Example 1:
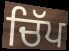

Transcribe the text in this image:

ਚਿੱਪ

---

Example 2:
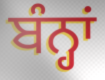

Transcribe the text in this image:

ਬੰਨ੍ਹਾਂ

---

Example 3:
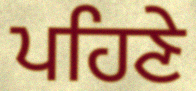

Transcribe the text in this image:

ਪਹਿਣੇ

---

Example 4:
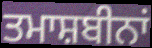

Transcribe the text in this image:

ਤਮਾਸ਼ਬੀਨਾਂ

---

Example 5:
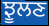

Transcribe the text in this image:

ਝੂਲਣ